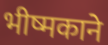
भीष्मकाने